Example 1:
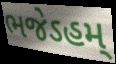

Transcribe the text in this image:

ભજેઽહમ્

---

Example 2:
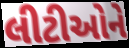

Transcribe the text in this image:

લીટીઓને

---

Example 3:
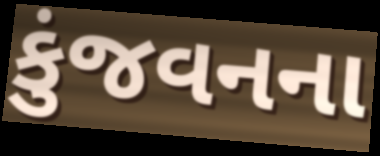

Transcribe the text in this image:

કુંજવનના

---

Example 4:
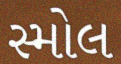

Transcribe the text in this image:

સ્મોલ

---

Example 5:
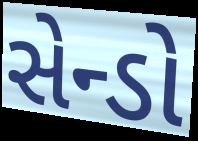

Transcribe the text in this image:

સેન્ડો